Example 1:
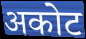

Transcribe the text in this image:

अकोट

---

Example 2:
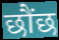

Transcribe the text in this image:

छौंछ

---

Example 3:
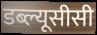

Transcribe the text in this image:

डब्ल्यूसीसी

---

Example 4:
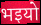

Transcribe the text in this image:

भइयो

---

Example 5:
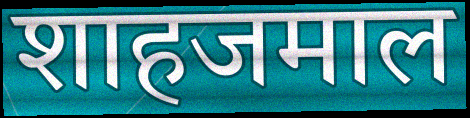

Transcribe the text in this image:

शाहजमाल